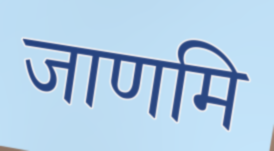
जाणमि